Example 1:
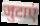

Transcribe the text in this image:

जुटाएं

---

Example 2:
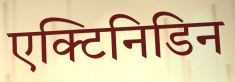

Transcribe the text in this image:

एक्टिनिडिन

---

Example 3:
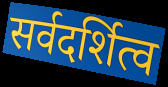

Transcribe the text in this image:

सर्वदर्शित्व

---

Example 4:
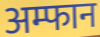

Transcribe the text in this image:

अम्‍फान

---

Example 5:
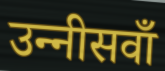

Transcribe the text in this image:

उन्‍नीसवाँ